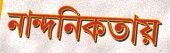
নান্দনিকতায়